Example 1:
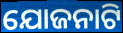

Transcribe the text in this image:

ଯୋଜନାଟି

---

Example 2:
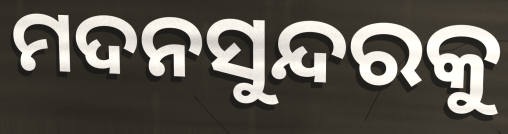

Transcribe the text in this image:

ମଦନସୁନ୍ଦରକୁ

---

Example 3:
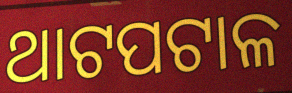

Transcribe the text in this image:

ଥାଟପଟାଳ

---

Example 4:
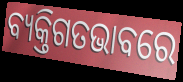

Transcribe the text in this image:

ବ୍ୟକ୍ତିଗତଭାବରେ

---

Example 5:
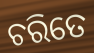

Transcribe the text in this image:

ଚରିତେ